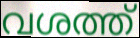
വശത്ത്